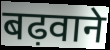
बढ़वाने